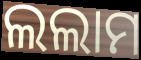
ଲଲାମ